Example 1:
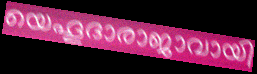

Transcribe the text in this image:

യെഹൂദാരാജാവായി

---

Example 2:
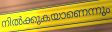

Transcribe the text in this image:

നിൽക്കുകയാണെന്നും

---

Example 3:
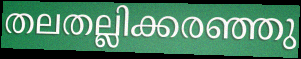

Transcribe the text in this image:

തലതല്ലിക്കരഞ്ഞു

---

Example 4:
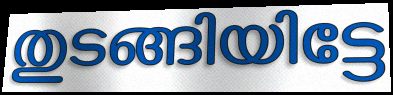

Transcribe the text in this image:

തുടങ്ങിയിട്ടേ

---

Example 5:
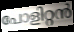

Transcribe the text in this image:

പോളിറ്റൻ